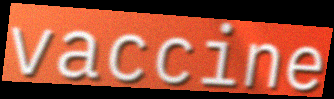
vaccine